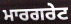
ਮਾਰਗਰੇਟ